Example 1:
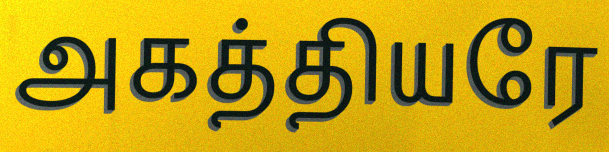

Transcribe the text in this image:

அகத்தியரே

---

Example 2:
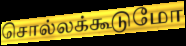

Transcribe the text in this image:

சொல்லக்கூடுமோ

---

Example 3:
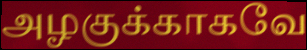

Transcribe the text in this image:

அழகுக்காகவே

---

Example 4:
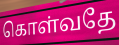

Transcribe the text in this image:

கொள்வதே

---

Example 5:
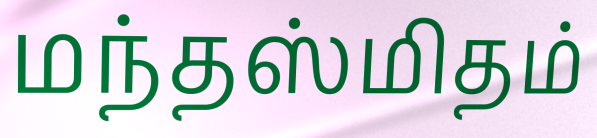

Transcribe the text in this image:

மந்தஸ்மிதம்